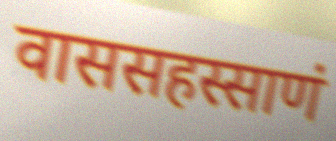
वाससहस्साणं